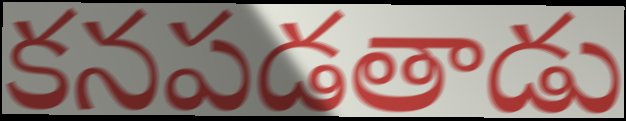
కనపడతాడు